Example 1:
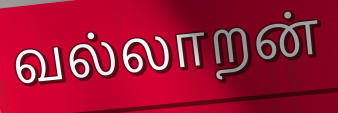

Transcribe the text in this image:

வல்லாறன்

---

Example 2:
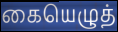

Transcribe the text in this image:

கையெழுத்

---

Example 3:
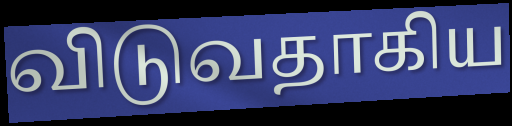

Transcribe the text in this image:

விடுவதாகிய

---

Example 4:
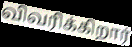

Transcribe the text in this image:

விவரிக்கிறார்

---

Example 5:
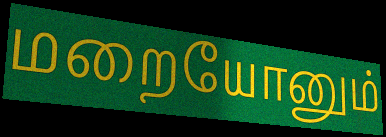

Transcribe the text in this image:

மறையோனும்